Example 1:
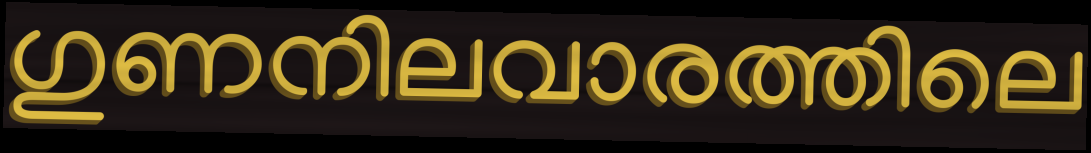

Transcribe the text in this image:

ഗുണനിലവാരത്തിലെ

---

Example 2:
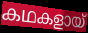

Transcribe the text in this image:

കഥകളായ്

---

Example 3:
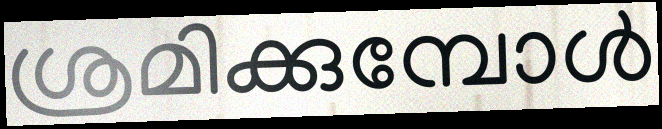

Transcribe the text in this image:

ശ്രമിക്കുമ്പോൾ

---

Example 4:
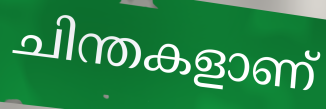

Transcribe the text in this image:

ചിന്തകളാണ്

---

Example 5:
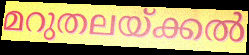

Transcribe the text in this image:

മറുതലയ്ക്കൽ